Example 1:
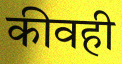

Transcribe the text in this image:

कीवही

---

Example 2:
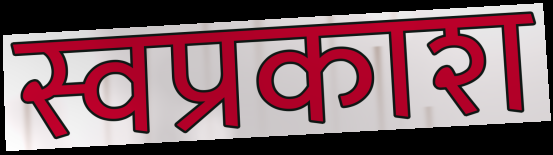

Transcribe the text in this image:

स्वप्रकाश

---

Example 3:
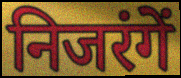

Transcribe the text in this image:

निजरंगें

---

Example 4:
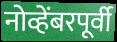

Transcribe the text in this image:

नोव्हेंबरपूर्वी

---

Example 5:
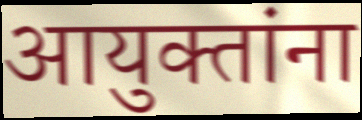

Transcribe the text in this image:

आयुक्‍तांना